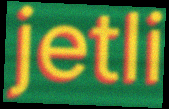
jetli